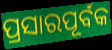
ପ୍ରସାରପୂର୍ବକ